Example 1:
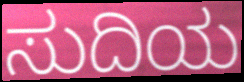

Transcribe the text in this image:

ಸುದಿಯ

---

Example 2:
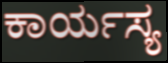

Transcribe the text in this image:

ಕಾರ್ಯಸ್ಯ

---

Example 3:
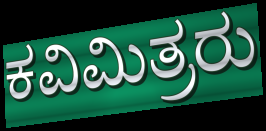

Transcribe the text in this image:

ಕವಿಮಿತ್ರರು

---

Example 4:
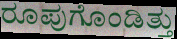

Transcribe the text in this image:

ರೂಪುಗೊಂಡಿತ್ತು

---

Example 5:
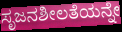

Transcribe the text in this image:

ಸೃಜನಶೀಲತೆಯನ್ನೇ